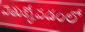
వెతుక్కోవడంలో